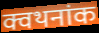
क्वथनांक